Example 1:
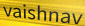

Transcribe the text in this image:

vaishnav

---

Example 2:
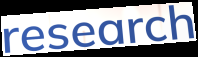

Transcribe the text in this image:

research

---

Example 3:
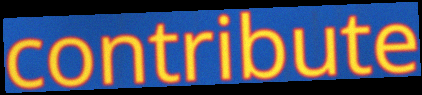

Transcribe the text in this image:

contribute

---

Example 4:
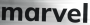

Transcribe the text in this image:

marvel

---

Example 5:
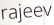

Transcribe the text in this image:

rajeev